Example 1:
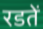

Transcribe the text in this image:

रडतें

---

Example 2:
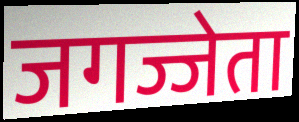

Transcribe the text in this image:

जगज्जेता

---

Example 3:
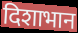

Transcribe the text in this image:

दिशाभान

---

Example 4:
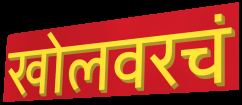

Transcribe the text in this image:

खोलवरचं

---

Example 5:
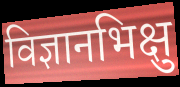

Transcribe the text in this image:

विज्ञानभिक्षु